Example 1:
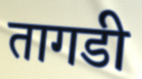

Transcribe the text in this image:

तागडी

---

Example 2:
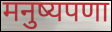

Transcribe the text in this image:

मनुष्यपणा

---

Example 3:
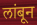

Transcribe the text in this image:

लांबून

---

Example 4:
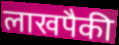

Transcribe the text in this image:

लाखपैकी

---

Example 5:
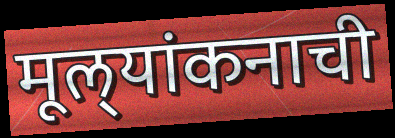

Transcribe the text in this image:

मूल्यांकनाची